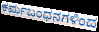
ಕರ್ಮಬಂಧನಗಳಿಂದ